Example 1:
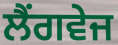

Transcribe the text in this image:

ਲੈਂਗਵੇਜ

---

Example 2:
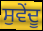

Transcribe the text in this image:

ਸੁਵੇਂਦੂ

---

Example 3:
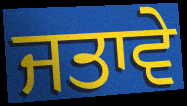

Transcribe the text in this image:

ਜਤਾਵੇ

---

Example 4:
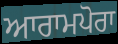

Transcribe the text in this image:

ਆਰਾਮਪੋਰਾ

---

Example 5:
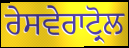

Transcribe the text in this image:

ਰੇਸਵੇਰਾਟ੍ਰੋਲ